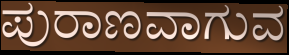
ಪುರಾಣವಾಗುವ